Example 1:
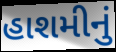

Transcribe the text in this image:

હાશમીનું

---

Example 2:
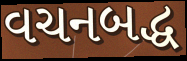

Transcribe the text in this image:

વચનબદ્ધ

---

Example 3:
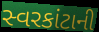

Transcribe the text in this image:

સ્વરકાંટાની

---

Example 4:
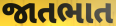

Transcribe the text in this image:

જાતભાત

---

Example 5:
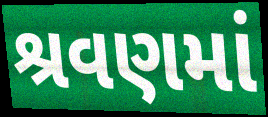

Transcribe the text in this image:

શ્રવણમાં